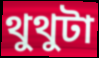
থুথুটা